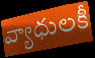
వ్యాధులకీ